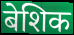
बेशिक